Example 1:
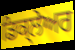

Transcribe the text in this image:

ਡਿਕ੍ਲੇਅਰ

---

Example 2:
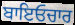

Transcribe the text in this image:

ਬਾਇਓਚਾਰ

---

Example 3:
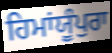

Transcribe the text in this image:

ਹਿਮਾਂਯੂੰਪੁਰਾ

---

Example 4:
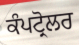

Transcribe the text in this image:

ਕੰਪਟ੍ਰੋਲਰ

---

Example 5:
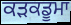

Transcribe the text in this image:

ਕੜਕਡੂਮਾ